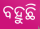
ବହୁଛି